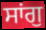
ਸਾਂਗੁ